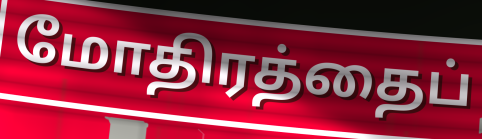
மோதிரத்தைப்